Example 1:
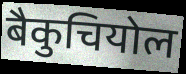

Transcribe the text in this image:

बैकुचियोल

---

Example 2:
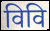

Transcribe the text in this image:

विवि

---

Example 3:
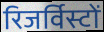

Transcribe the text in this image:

रिजर्विस्टों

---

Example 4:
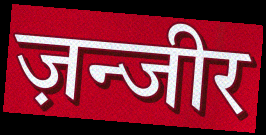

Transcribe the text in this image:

ज़न्जीर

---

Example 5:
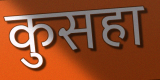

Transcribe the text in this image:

कुसहा